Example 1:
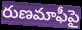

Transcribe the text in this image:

రుణమాఫీపై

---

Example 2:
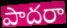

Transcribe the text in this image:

పాదరా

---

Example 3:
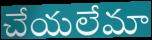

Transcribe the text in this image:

చేయలేమా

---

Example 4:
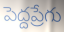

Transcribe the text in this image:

పెద్దప్రేగు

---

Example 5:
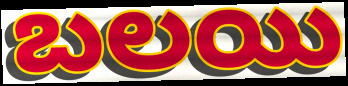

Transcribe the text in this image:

బలయి